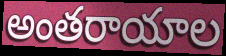
అంతరాయాల